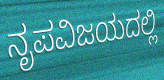
ನೃಪವಿಜಯದಲ್ಲಿ